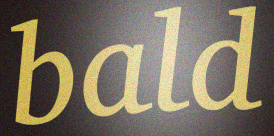
bald